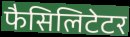
फैसिलिटेटर